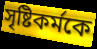
সৃষ্টিকর্মকে